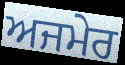
ਅਜਮੇਰ